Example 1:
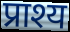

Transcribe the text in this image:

प्राश्य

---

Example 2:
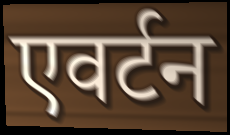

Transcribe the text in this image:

एवर्टन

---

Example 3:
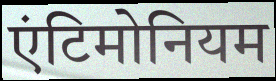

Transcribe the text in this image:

एंटिमोनियम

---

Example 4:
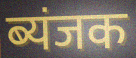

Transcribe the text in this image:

ब्यंजक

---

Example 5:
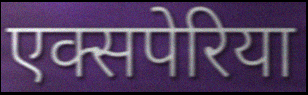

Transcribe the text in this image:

एक्सपेरिया